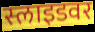
स्‍लाइडवर